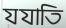
যযাতি